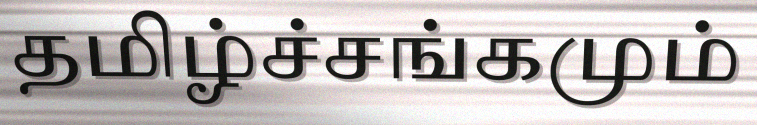
தமிழ்ச்சங்கமும்